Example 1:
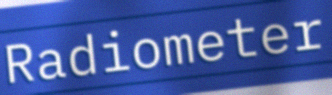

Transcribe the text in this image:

Radiometer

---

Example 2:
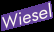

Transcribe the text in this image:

Wiesel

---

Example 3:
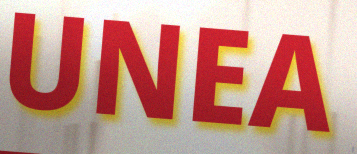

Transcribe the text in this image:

UNEA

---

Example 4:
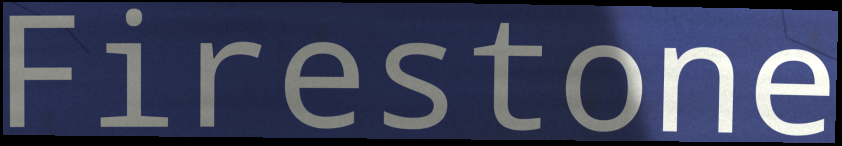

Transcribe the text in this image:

Firestone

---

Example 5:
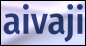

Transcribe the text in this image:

aivaji